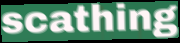
scathing